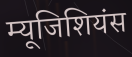
म्यूजिशियंस